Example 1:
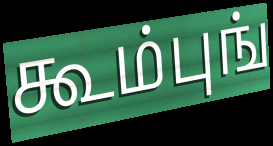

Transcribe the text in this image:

கூம்புங்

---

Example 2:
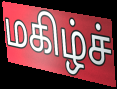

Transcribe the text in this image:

மகிழ்ச்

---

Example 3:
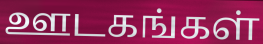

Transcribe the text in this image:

ஊடகங்கள்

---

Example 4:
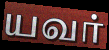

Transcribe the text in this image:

யவர்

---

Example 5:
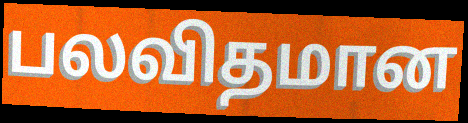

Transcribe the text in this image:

பலவிதமான